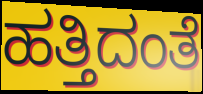
ಹತ್ತಿದಂತೆ